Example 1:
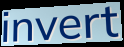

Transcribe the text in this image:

invert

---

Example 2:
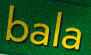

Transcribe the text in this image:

bala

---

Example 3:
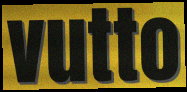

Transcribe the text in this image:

vutto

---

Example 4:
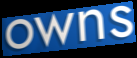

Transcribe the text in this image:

owns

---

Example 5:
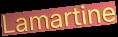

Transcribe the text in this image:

Lamartine